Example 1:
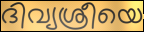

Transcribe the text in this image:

ദിവ്യശ്രീയെ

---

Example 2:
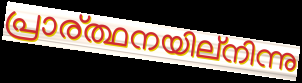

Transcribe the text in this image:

പ്രാര്ത്ഥനയില്നിന്നു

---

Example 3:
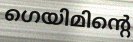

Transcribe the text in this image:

ഗെയിമിന്റെ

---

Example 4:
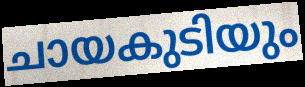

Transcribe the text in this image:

ചായകുടിയും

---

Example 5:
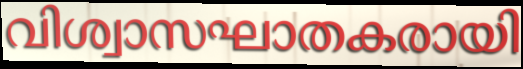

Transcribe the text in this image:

വിശ്വാസഘാതകരായി